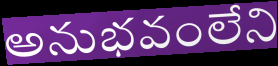
అనుభవంలేని